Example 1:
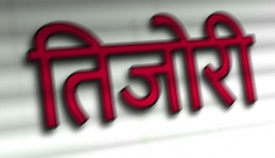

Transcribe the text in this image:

तिजोरी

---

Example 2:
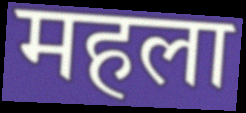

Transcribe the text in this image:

महला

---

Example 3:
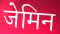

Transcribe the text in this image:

जेमिन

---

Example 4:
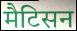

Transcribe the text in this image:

मैटिसन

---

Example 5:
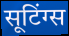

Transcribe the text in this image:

सूटिंग्स